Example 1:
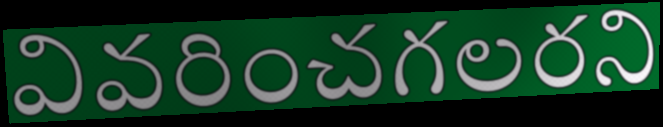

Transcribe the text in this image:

వివరించగలరని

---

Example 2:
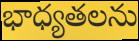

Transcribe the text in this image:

భాధ్యతలను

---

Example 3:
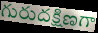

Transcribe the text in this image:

గురుదక్షిణగా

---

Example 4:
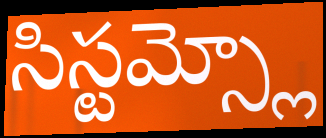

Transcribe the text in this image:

సిస్టమ్స్లో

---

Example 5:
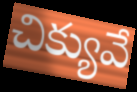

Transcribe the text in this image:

చిక్యువే